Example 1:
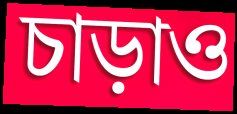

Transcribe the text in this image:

চাড়াও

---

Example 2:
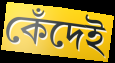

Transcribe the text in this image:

কেঁদেই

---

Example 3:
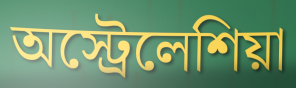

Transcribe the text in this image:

অস্ট্রেলেশিয়া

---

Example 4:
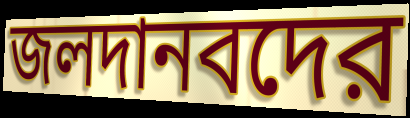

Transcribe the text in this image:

জলদানবদের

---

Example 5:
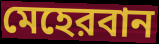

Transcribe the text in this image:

মেহেরবান